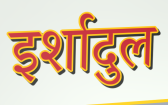
इर्शादुल